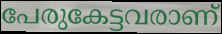
പേരുകേട്ടവരാണ്